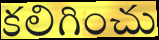
కలిగించు